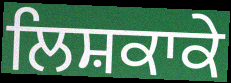
ਲਿਸ਼ਕਾਕੇ